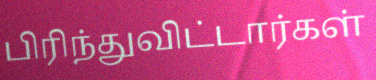
பிரிந்துவிட்டார்கள்